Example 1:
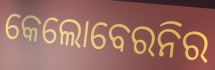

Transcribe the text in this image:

କେଲୋବେରନିର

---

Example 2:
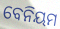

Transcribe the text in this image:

ବେନିୟମ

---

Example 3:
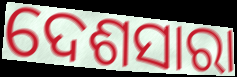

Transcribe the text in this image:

ଦେଶସାରା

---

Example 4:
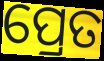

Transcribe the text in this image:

ପ୍ରେତ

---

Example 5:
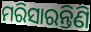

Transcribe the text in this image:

ମରିସାରନ୍ତିଣି